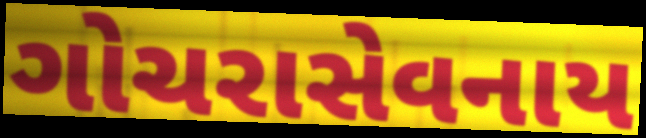
ગોચરાસેવનાય